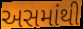
અસમાંથી